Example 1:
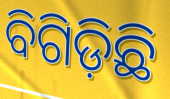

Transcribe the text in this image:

ବିଗିଡ଼ିଛି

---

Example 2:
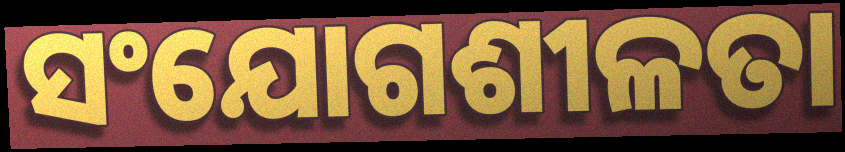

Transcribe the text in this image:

ସଂଯୋଗଶୀଳତା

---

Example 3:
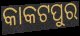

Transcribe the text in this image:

କାକଟପୁର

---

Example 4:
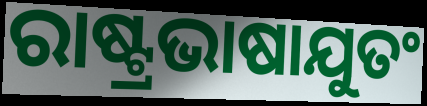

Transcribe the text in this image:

ରାଷ୍ଟ୍ରଭାଷାଯୁତଂ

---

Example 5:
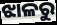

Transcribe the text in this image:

ଝାଳରୁ